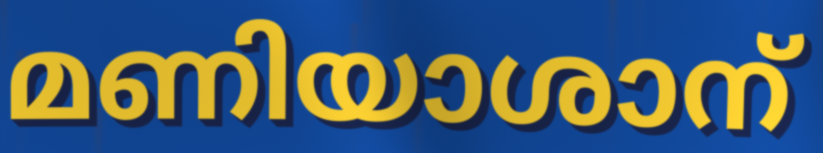
മണിയാശാന്